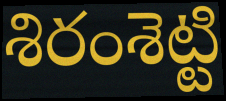
శిరంశెట్టి